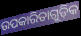
ଉପକାରିତାଗୁଡ଼ିକ